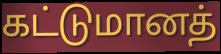
கட்டுமானத்